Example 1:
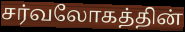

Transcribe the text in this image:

சர்வலோகத்தின்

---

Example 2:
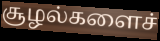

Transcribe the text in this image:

சூழல்களைச்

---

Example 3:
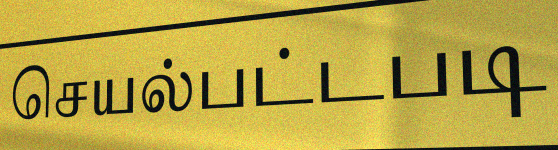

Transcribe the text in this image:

செயல்பட்டபடி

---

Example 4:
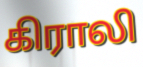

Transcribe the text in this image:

கிராலி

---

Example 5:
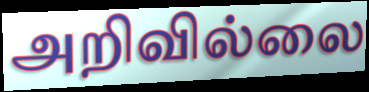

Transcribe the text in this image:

அறிவில்லை